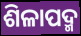
ଶିଳାପଦ୍ମ